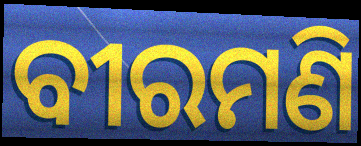
ବୀରମଣି